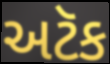
અટૅક